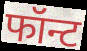
फॉन्ट